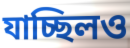
যাচ্ছিলও